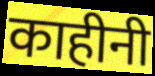
काहीनी